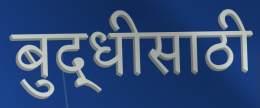
बुद्धीसाठी